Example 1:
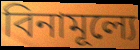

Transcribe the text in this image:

বিনামূল্যে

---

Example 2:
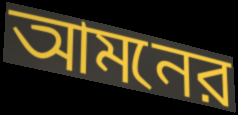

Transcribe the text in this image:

আমনের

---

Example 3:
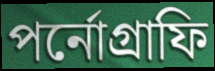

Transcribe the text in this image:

পর্নোগ্রাফি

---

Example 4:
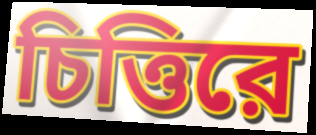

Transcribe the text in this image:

চিত্তিরে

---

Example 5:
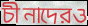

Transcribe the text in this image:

চীনাদেরও